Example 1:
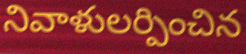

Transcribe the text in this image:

నివాళులర్పించిన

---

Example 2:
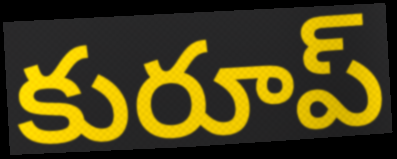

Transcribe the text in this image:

కురూప్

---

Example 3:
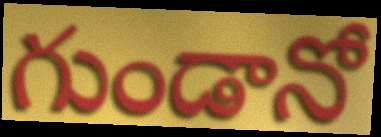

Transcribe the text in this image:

గుండానో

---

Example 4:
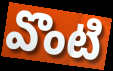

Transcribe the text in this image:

వొంటి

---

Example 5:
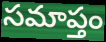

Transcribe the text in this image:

సమాప్తం